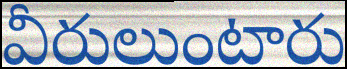
వీరులుంటారు